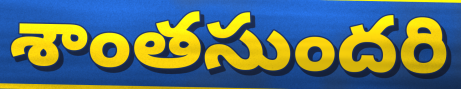
శాంతసుందరి